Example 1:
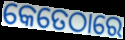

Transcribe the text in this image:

କେତେଠାରେ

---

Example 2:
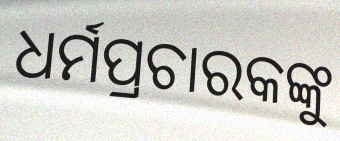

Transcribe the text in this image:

ଧର୍ମପ୍ରଚାରକଙ୍କୁ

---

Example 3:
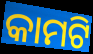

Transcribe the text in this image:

କାମଟି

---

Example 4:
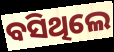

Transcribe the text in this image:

ବସିଥିଲେ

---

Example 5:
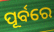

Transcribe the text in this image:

ପୂର୍ବରେ